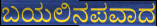
ಬಯಲಿನಪವಾದ